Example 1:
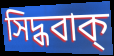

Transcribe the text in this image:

সিদ্ধবাক্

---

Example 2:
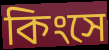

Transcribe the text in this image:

কিংসে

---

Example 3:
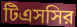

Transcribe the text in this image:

টিএসসির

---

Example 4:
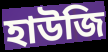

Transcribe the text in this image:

হাউজি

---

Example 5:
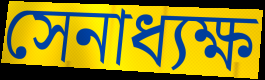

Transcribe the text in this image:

সেনাধ্যক্ষ